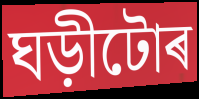
ঘড়ীটোৰ